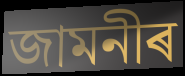
জামনীৰ